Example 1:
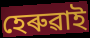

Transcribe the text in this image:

হেৰুৱাই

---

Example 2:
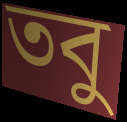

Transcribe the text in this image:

তবু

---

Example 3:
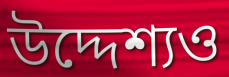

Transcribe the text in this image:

উদ্দেশ্যও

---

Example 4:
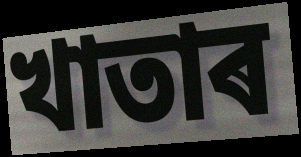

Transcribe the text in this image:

খাতাৰ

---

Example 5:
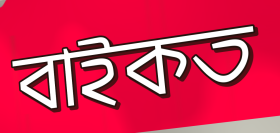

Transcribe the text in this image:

বাইকত